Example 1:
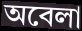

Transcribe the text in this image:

অবেলা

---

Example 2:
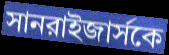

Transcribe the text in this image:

সানরাইজার্সকে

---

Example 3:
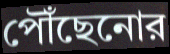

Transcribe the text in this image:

পৌঁছেনোর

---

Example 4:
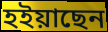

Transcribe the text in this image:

হইয়াছেন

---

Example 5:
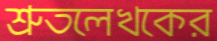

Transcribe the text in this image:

শ্রুতলেখকের